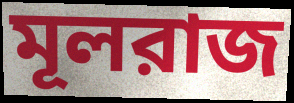
মূলরাজ